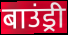
बाउंड्री